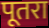
पूतरा